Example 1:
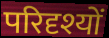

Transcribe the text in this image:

परिदृश्यों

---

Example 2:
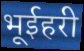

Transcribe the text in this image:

भूईहरी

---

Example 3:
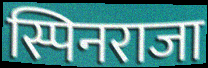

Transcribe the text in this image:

स्पिनराजा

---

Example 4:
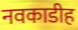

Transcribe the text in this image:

नवकाडीह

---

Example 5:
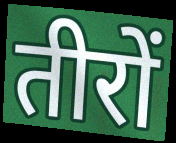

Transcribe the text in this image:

तीरों